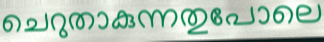
ചെറുതാകുന്നതുപോലെ